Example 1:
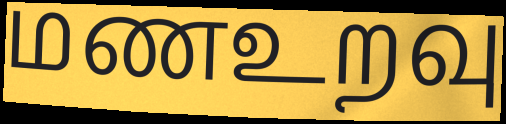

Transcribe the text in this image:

மணஉறவு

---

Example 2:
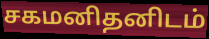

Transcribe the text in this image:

சகமனிதனிடம்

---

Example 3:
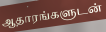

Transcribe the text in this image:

ஆதாரங்களுடன்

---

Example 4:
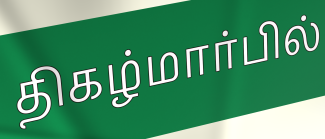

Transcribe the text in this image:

திகழ்மார்பில்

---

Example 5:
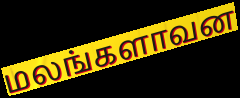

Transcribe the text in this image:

மலங்களாவன